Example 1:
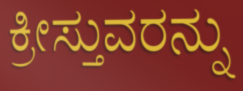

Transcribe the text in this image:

ಕ್ರೀಸ್ತುವರನ್ನು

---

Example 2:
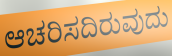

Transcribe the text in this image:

ಆಚರಿಸದಿರುವುದು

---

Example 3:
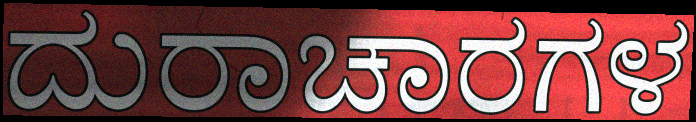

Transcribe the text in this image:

ದುರಾಚಾರಗಳ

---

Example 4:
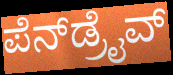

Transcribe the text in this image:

ಪೆನ್‌ಡ್ರೈವ್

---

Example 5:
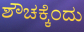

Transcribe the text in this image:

ಶೌಚಕ್ಕೆಂದು